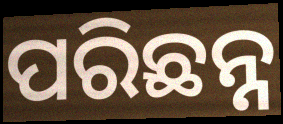
ପରିଛନ୍ନ